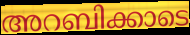
അറബിക്കാടെ